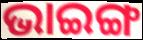
ଭାଇଙ୍ଗ